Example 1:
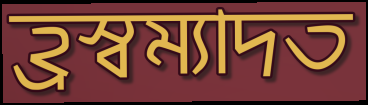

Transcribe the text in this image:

হ্ৰস্বম্যাদত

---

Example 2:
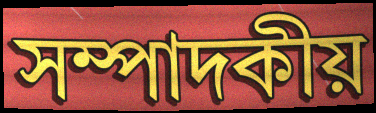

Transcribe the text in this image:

সম্পাদকীয়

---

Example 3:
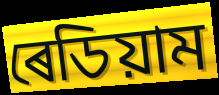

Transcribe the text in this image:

ৰেডিয়াম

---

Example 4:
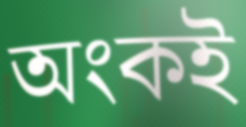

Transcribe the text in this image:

অংকই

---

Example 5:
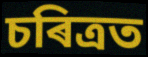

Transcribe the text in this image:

চৰিত্ৰত